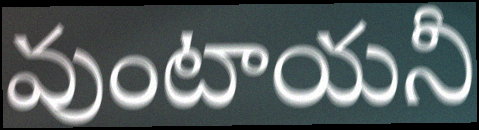
వుంటాయనీ